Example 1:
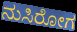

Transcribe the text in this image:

ನುಸಿರೋಗ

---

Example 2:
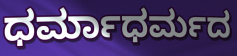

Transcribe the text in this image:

ಧರ್ಮಾಧರ್ಮದ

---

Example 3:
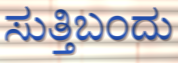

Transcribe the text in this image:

ಸುತ್ತಿಬಂದು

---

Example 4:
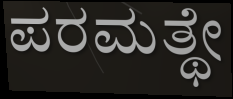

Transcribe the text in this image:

ಪರಮತ್ಥೇ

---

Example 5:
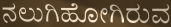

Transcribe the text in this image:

ನಲುಗಿಹೋಗಿರುವ